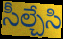
సీల్చేసి